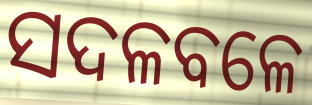
ସଦଳବଳେ